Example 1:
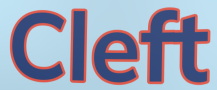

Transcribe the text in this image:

Cleft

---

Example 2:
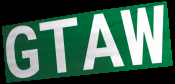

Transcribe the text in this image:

GTAW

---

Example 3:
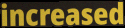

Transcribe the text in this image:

increased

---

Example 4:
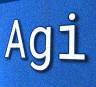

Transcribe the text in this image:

Agi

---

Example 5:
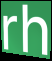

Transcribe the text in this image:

rh